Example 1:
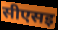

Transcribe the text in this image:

सीएसइ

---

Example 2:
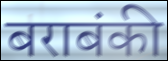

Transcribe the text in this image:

बराबंकी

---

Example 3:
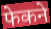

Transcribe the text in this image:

फेकने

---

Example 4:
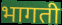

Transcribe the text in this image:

भागती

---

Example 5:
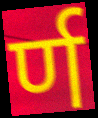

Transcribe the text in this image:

र्ण